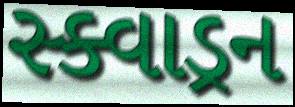
સ્ક્વાડ્રન